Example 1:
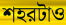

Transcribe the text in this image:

শহরটাও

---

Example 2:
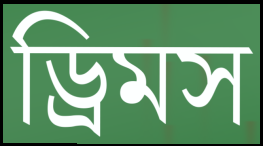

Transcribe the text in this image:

ড্রিমস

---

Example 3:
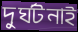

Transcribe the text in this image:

দুর্ঘটনাই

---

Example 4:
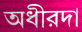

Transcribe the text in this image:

অধীরদা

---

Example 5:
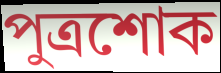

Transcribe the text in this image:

পুত্রশোক